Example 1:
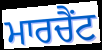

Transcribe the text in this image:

ਮਾਰਚੈਂਟ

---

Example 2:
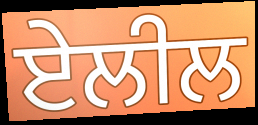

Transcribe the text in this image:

ਏਲੀਲ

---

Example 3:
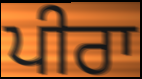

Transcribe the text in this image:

ਪੀਰਾ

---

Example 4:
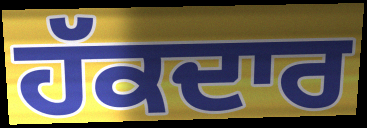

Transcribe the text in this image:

ਹੱਕਦਾਰ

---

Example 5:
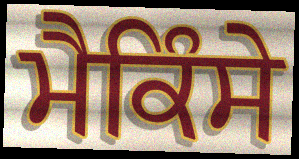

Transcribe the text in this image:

ਮੈਕਿੰਸੇ